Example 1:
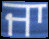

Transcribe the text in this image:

ਜਾ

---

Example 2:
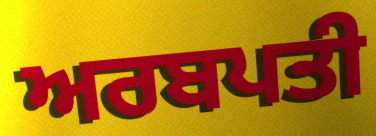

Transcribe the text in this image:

ਅਰਬਪਤੀ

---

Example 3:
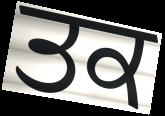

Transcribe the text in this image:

ਤਕ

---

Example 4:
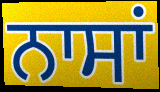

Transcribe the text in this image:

ਨਾਸਾਂ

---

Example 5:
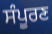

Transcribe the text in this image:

ਸੰਪੂਰਣ